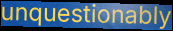
unquestionably